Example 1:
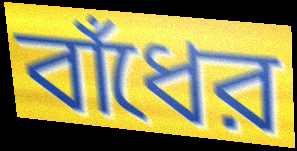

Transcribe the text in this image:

বাঁধের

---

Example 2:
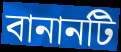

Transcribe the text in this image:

বানানটি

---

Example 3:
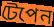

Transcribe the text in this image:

টেপেন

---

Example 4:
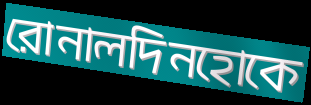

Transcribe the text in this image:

রোনালদিনহোকে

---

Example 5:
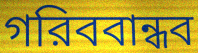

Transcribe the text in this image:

গরিববান্ধব